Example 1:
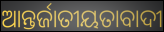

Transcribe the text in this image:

ଆନ୍ତର୍ଜାତୀୟତାବାଦୀ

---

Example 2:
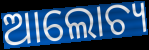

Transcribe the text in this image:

ଆଲୋଚ୍ୟ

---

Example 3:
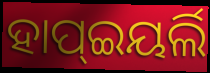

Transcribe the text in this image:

ହାପ୍ଇୟର୍ଲି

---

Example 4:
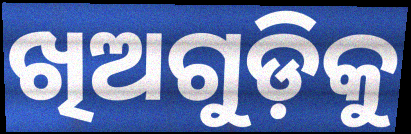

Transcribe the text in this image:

ଖିଅଗୁଡ଼ିକୁ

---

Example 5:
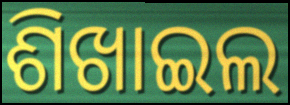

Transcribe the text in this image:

ଶିଖାଇଲ